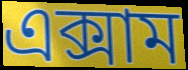
এক্সাম